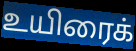
உயிரைக்